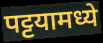
पट्टयामध्ये